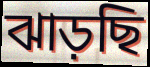
ঝাড়ছি